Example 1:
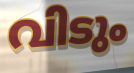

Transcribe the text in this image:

വിടും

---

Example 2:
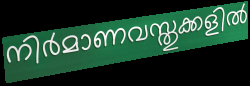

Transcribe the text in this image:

നിർമാണവസ്തുക്കളിൽ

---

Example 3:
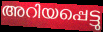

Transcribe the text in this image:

അറിയപ്പെട്ടു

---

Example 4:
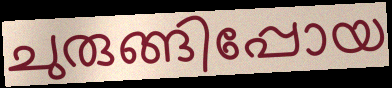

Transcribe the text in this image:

ചുരുങ്ങിപ്പോയ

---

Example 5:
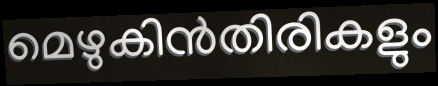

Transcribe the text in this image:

മെഴുകിൻതിരികളും